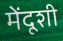
मेंदूशी